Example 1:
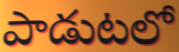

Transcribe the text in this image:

పాడుటలో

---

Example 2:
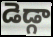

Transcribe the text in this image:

డెడ్గా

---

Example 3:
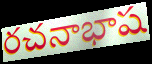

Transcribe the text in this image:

రచనాభాష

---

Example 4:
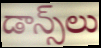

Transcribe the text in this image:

డాన్స్‌లు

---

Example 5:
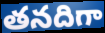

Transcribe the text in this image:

తనదిగా